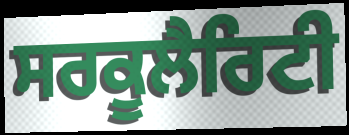
ਸਰਕੂਲੈਰਿਟੀ